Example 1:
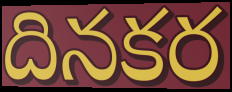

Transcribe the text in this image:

దినకర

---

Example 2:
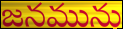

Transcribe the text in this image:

జనమును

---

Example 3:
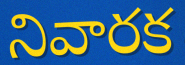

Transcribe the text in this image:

నివారక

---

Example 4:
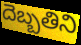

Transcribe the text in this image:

దెబ్బతిని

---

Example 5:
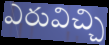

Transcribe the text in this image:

ఎరువిచ్చి